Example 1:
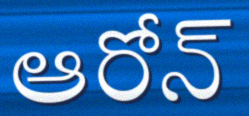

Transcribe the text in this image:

ఆరోన్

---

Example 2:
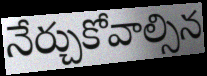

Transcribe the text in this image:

నేర్చుకోవాల్సిన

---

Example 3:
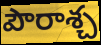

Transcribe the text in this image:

పౌరాశ్చ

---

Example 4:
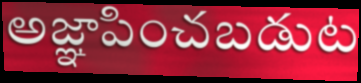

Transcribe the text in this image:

అజ్ఞాపించబడుట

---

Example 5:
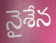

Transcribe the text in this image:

నైశేన